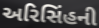
અરિસિંહની